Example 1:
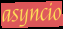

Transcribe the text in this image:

asyncio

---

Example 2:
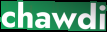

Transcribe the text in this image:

chawdi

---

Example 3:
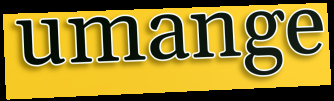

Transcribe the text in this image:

umange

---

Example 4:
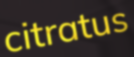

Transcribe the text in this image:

citratus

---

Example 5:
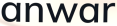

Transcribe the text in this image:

anwar